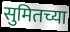
सुमितच्या